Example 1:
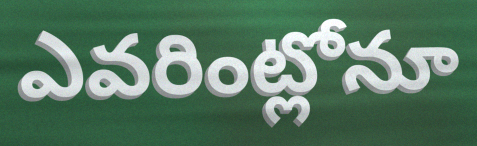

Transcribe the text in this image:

ఎవరింట్లోనూ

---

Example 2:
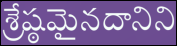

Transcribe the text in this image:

శ్రేష్ఠమైనదానిని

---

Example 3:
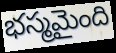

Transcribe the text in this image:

భస్మమైంది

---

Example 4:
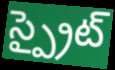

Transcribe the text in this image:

స్ప్రైట్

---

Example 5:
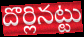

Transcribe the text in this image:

దొర్లినట్టు